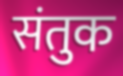
संतुक